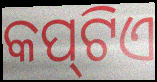
କପ୍‌ଟିଏ